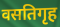
वसतिगृह